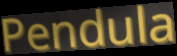
Pendula